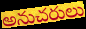
అనుచరులు